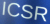
ICSR